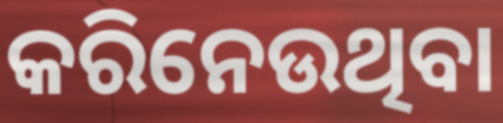
କରିନେଉଥିବା